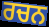
ਰਚਨ